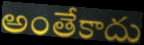
అంతేకాదు